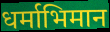
धर्माभिमान